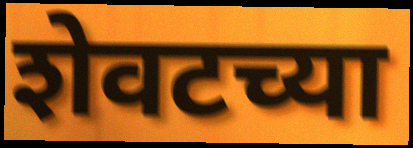
शेवटच्या